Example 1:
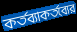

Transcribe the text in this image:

কর্তব্যাকর্তব্যের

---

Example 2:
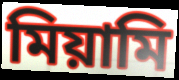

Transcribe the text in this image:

মিয়ামি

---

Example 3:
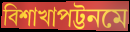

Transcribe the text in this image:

বিশাখাপট্টনমে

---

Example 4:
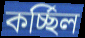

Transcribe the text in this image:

কর্চ্ছিল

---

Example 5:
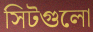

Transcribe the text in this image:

সিটগুলো